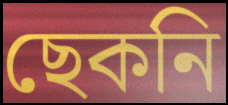
ছেকনি